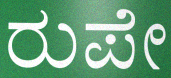
ರುಪೇ